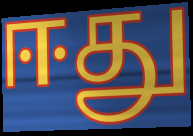
ஈது